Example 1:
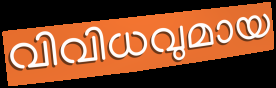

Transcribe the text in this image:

വിവിധവുമായ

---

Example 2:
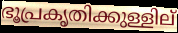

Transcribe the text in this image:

ഭൂപ്രകൃതിക്കുള്ളില്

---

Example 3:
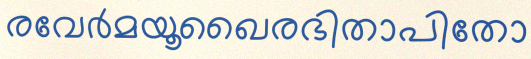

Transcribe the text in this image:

രവേർമയൂഖൈരഭിതാപിതോ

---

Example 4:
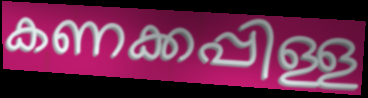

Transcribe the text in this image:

കണക്കപ്പിള്ള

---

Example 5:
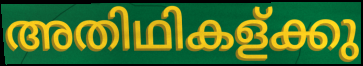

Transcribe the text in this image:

അതിഥികള്ക്കു